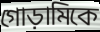
গোড়ামিকে